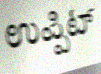
ಉಪ್ಪಿಟ್